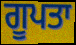
ਗੂਪਤਾ